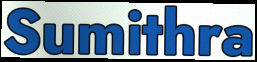
Sumithra